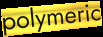
polymeric